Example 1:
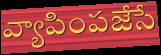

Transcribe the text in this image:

వ్యాపింపజేసే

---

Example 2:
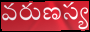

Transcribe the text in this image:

వరుణస్య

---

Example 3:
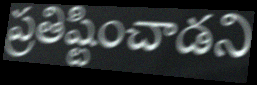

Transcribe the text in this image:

ప్రతిష్టించాడని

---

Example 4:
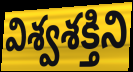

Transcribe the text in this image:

విశ్వశక్తిని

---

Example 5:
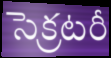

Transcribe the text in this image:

సెక్రటరీ